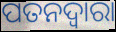
ପତନଦ୍ଵାରା